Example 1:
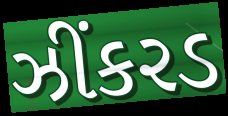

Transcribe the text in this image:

ઝીંકરડ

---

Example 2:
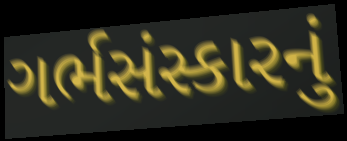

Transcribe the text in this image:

ગર્ભસંસ્કારનું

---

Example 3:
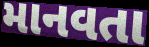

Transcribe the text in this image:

માનવતા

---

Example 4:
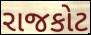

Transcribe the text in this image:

રાજકોટ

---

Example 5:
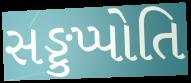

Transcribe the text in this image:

સઙ્કપ્પોતિ